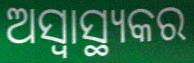
ଅସ୍ବାସ୍ଥ୍ୟକର